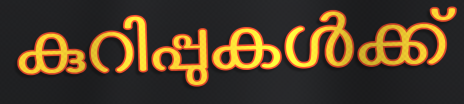
കുറിപ്പുകൾക്ക്